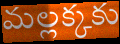
మల్లక్కకు